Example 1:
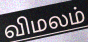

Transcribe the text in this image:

விமலம்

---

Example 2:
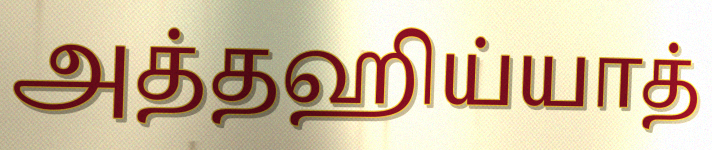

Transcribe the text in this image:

அத்தஹிய்யாத்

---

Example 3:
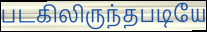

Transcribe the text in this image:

படகிலிருந்தபடியே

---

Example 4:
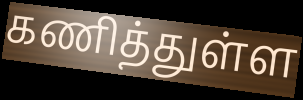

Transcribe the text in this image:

கணித்துள்ள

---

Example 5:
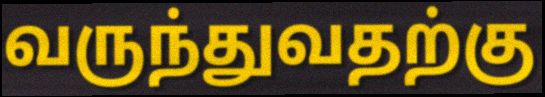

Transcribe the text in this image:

வருந்துவதற்கு